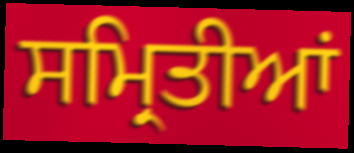
ਸਮ੍ਰਿਤੀਆਂ